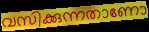
വസിക്കുന്നതാണോ